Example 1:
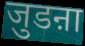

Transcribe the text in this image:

जुडऩा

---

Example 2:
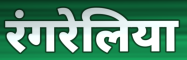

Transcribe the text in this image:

रंगरेलिया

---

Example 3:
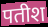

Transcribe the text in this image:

पतीश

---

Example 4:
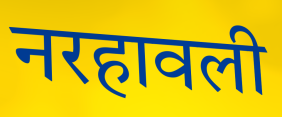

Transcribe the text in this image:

नरहावली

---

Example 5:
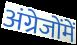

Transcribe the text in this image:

अंग्रेजोंमें